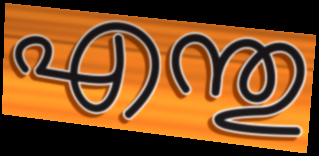
എന്തു